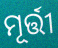
ମୂର୍ତ୍ତୀ